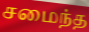
சமைந்த